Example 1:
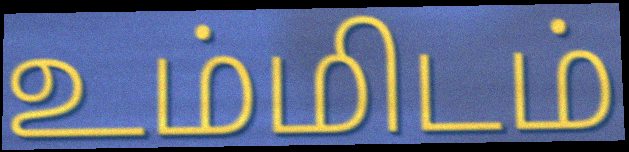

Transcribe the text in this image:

உம்மிடம்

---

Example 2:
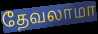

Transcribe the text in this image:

தேவலாமா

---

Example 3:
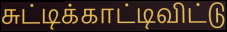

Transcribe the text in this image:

சுட்டிக்காட்டிவிட்டு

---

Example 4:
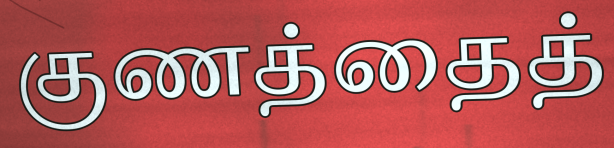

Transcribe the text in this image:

குணத்தைத்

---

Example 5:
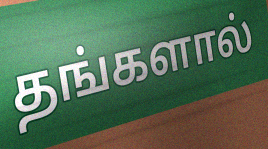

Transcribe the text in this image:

தங்களால்